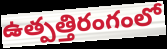
ఉత్పత్తిరంగంలో